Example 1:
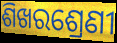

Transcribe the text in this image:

ଶିଖରଶ୍ରେଣୀ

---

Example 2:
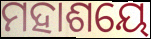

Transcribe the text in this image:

ମହାଶୟେ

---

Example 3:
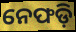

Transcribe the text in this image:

ନେଫଡ଼ି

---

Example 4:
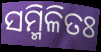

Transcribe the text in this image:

ସମ୍ମିଳିତଃ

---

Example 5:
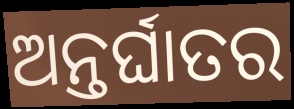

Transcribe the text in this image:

ଅନ୍ତର୍ଘାତର